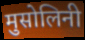
मुसोलिनी